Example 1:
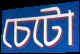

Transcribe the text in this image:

চেটো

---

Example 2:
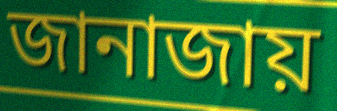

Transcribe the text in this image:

জানাজায়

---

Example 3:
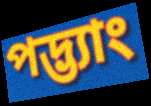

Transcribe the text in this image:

পদ্ভ্যাং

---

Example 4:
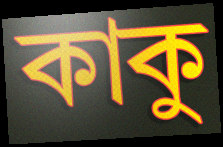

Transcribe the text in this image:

কাকু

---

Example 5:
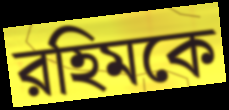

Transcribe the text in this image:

রহিমকে